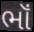
ભૉં